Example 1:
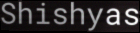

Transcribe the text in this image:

Shishyas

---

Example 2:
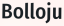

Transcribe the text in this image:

Bolloju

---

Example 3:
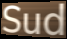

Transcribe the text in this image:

Sud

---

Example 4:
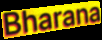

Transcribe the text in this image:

Bharana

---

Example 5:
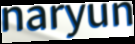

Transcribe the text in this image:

naryun